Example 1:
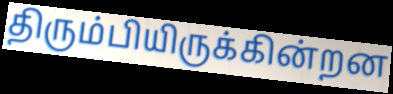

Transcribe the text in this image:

திரும்பியிருக்கின்றன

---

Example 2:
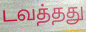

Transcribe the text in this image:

டவத்தது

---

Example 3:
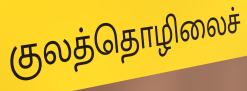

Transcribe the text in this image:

குலத்தொழிலைச்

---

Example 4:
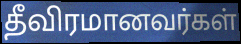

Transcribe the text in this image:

தீவிரமானவர்கள்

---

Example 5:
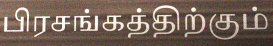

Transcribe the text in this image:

பிரசங்கத்திற்கும்